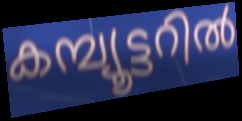
കമ്പ്യൂട്ടറിൽ